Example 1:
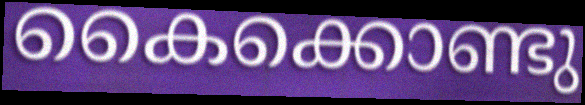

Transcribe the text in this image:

കൈക്കൊണ്ടു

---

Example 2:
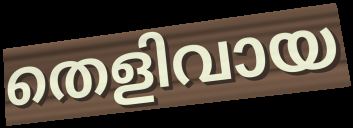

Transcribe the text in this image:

തെളിവായ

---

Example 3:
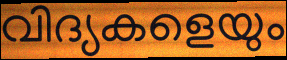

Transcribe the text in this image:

വിദ്യകളെയും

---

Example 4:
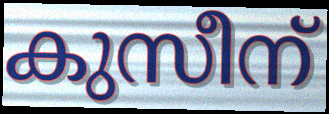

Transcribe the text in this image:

കുസീന്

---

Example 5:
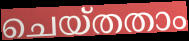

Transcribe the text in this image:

ചെയ്തതാം